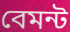
বেমন্ট